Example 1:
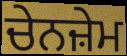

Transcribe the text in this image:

ਚੇਨਜ਼ੇਮ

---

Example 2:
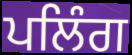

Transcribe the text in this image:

ਪਲਿੰਗ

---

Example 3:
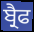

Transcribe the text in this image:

ਬ੍ਰੈਫ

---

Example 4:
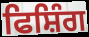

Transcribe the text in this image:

ਫਿਸ਼ਿੰਗ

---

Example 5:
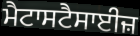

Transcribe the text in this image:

ਮੈਟਾਸਟੈਸਾਈਜ਼